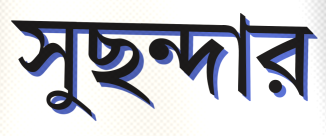
সুছন্দার